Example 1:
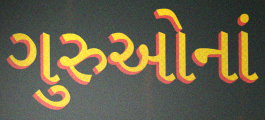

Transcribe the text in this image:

ગુરુઓનાં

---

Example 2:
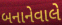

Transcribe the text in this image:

બનાનેવાલે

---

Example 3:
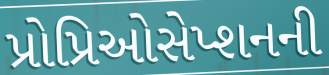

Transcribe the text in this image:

પ્રોપ્રિઓસેપ્શનની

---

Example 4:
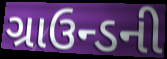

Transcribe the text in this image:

ગ્રાઉન્ડની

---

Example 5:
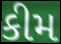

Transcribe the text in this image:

કીમ